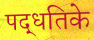
पद्धतिके